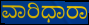
ವಾರಿಧಾರಾ